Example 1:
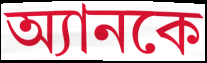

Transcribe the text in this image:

অ্যানকে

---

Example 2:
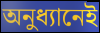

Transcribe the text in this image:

অনুধ্যানেই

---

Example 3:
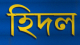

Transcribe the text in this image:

হিদল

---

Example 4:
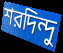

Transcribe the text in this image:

শরদিন্দু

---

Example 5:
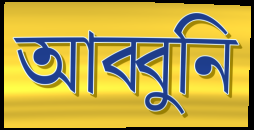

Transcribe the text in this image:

আব্বুনি